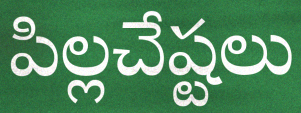
పిల్లచేష్టలు